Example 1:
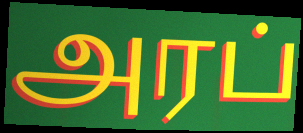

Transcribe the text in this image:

அரப்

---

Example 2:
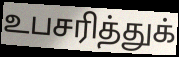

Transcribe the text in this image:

உபசரித்துக்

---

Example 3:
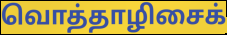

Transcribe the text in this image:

வொத்தாழிசைக்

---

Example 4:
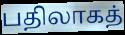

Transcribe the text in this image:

பதிலாகத்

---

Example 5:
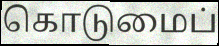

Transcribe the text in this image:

கொடுமைப்